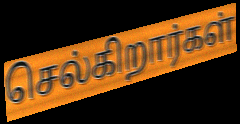
செல்கிறார்கள்